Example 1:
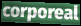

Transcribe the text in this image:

corporeal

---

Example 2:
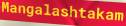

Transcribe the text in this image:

Mangalashtakam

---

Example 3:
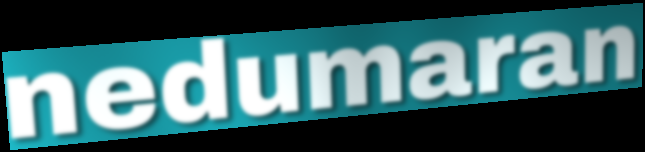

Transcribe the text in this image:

nedumaran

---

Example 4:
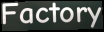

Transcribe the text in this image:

Factory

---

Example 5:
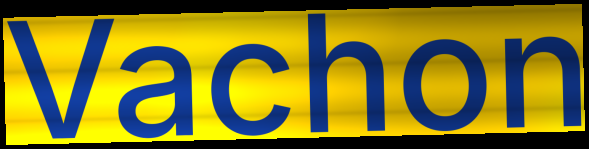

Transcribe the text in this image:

Vachon